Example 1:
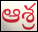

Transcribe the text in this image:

ఆశ్ర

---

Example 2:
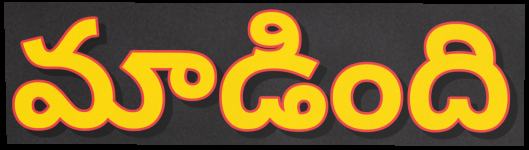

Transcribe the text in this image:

మాడింది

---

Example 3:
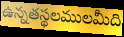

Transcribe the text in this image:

ఉన్నతస్థలములమీది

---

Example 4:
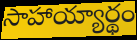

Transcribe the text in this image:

సాహాయ్యార్థం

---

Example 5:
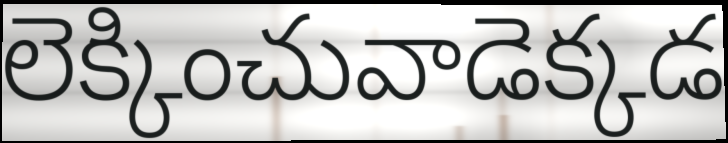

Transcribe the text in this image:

లెక్కించువాడెక్కడ